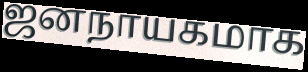
ஜனநாயகமாக